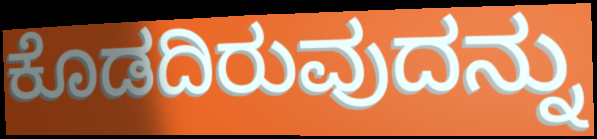
ಕೊಡದಿರುವುದನ್ನು